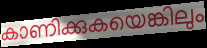
കാണിക്കുകയെങ്കിലും